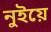
নুইয়ে